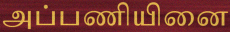
அப்பணியினை